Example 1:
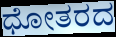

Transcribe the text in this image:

ಧೋತರದ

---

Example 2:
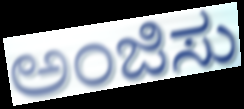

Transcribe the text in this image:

ಅಂಜಿಸು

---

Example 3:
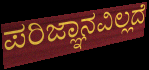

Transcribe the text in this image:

ಪರಿಜ್ಞಾನವಿಲ್ಲದೆ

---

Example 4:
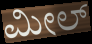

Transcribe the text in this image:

ಮೀಲ್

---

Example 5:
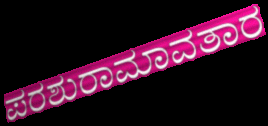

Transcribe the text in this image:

ಪರಶುರಾಮಾವತಾರ